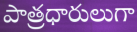
పాత్రధారులుగా